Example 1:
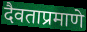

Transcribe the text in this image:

दैवताप्रमाणे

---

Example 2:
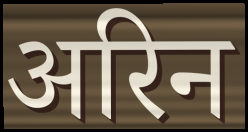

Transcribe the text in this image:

अरिन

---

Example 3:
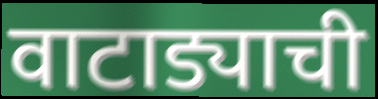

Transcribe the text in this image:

वाटाड्याची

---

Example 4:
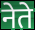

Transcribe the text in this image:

नेते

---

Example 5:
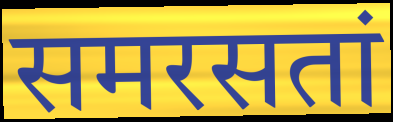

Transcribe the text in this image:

समरसतां